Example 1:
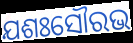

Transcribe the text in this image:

ଯଶଃସୌରଭ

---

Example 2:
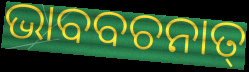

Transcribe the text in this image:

ଭାବବଚନାତ୍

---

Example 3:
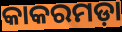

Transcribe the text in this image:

କାକରମଡ଼ା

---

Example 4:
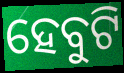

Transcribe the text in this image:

ହେବୁଟି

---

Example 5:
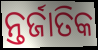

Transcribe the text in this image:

ନ୍ତର୍ଜାତିକ